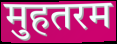
मुहतरम